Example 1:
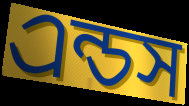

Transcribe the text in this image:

এন্ডস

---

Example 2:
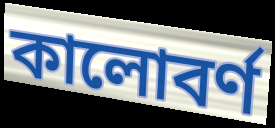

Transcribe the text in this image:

কালোবর্ণ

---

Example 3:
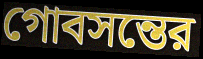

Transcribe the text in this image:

গোবসন্তের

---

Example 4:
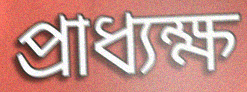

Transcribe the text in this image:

প্রাধ্যক্ষ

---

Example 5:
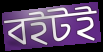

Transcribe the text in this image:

বইটই